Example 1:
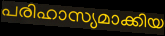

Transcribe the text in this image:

പരിഹാസ്യമാക്കിയ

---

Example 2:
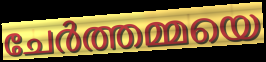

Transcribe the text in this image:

ചേർത്തമ്മയെ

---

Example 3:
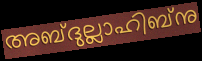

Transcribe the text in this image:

അബ്ദുല്ലാഹിബ്നു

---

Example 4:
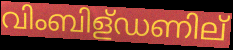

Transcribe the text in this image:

വിംബിള്ഡണില്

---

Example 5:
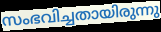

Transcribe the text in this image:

സംഭവിച്ചതായിരുന്നു